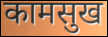
कामसुख